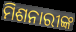
ମିଶନାରୀଙ୍କ